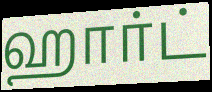
ஹார்ட்